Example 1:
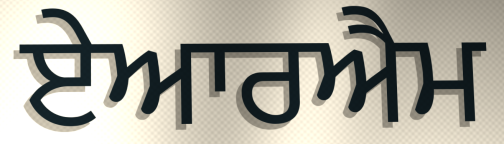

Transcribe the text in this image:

ਏਆਰਐਮ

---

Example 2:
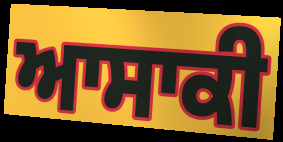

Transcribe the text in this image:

ਆਸਾਕੀ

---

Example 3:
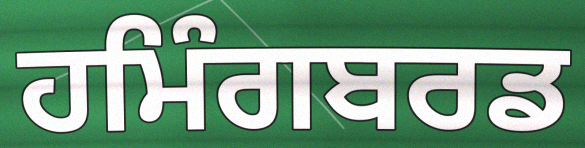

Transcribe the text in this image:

ਹਮਿੰਗਬਰਡ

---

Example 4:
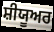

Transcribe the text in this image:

ਸ਼ੀਯੂਅਰ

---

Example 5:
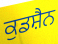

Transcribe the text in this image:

ਕੁਡਸ਼ੈਨ